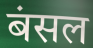
बंसल